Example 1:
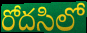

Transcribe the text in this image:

రోదసిలో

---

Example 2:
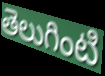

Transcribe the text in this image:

తెలుగింటి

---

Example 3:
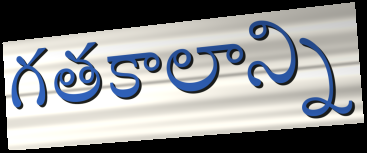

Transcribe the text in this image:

గతకాలాన్ని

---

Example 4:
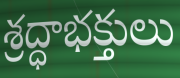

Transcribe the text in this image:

శ్రద్ధాభక్తులు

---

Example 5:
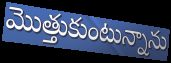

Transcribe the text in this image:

మొత్తుకుంటున్నాను